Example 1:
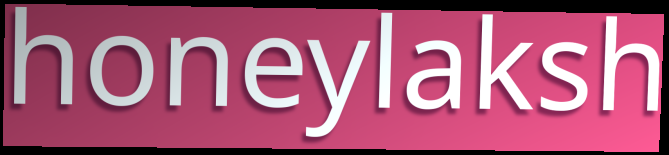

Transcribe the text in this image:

honeylaksh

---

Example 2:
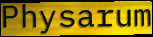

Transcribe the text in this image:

Physarum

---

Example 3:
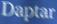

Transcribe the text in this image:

Daptar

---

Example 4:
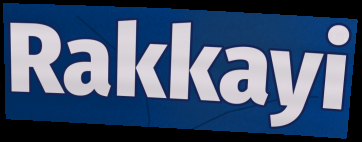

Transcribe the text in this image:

Rakkayi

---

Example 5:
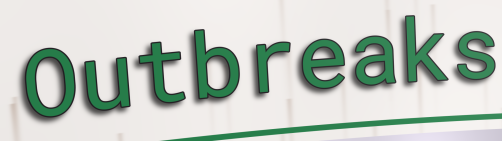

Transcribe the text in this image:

Outbreaks